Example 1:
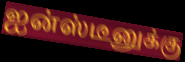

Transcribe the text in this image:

ஐன்ஸ்டீனுக்கு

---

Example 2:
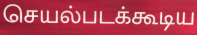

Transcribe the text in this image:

செயல்படக்கூடிய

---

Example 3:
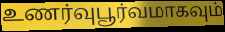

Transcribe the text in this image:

உணர்வுபூர்வமாகவும்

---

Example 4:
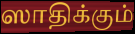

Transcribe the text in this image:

ஸாதிக்கும்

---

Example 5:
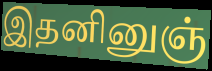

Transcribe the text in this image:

இதனினுஞ்